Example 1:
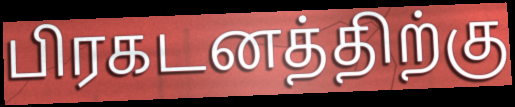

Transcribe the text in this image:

பிரகடனத்திற்கு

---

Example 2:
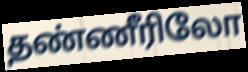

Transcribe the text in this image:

தண்ணீரிலோ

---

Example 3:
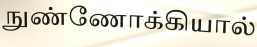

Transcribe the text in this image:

நுண்ணோக்கியால்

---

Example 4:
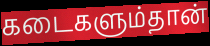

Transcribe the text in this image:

கடைகளும்தான்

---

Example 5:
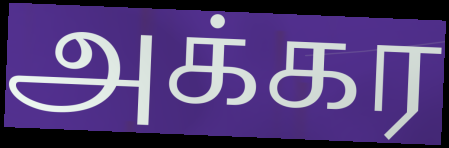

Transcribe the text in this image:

அக்கர